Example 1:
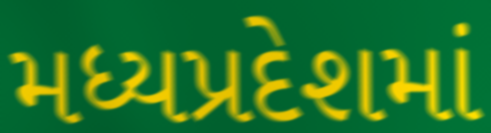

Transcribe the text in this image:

મધ્યપ્રદેશમાં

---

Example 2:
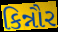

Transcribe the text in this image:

કિન્નૌર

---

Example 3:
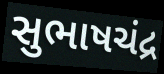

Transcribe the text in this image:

સુભાષચંદ્ર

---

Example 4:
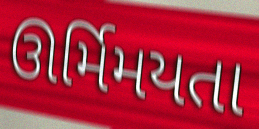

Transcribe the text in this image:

ઊર્મિમયતા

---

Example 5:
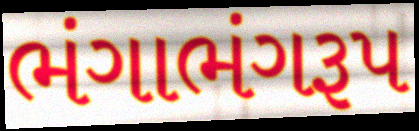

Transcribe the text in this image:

ભંગાભંગરૂપ